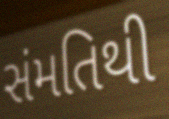
સંમતિથી